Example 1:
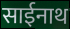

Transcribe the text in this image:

साईनाथ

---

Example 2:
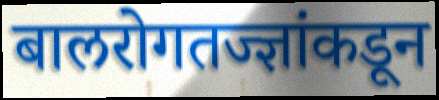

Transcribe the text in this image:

बालरोगतज्ज्ञांकडून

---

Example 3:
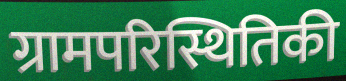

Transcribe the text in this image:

ग्रामपरिस्थितिकी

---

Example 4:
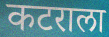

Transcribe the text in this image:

कटराला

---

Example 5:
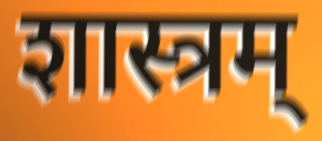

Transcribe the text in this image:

शास्त्रम्